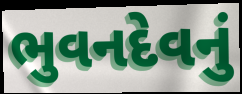
ભુવનદેવનું